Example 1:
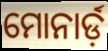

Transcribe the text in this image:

ମୋନାର୍ଡ଼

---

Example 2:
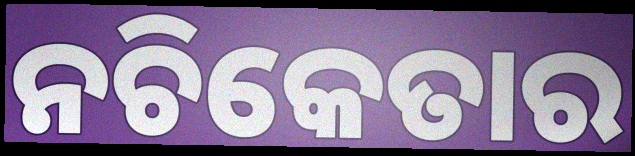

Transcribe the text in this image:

ନଚିକେତାର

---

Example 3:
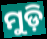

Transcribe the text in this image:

ମୁଡ଼ି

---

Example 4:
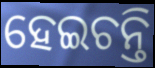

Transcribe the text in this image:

ହେଇଚନ୍ତି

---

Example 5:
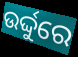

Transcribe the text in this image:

ଉର୍ଦ୍ଦୁରେ